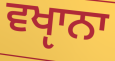
ਵਖੵਾਨਾ